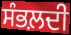
ਸੰਭਲ਼ਦੀ